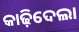
କାଢ଼ିଦେଲା